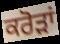
ਕਰੋੜਾਂ